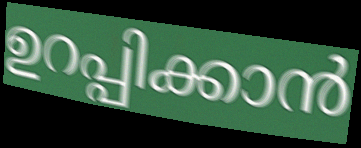
ഉറപ്പിക്കാൻ